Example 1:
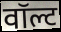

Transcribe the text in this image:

वॉल्ट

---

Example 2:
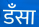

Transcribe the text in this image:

डँसा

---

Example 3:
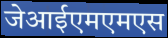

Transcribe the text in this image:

जेआईएमएमएस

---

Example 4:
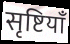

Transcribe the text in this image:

सृष्टियाँ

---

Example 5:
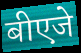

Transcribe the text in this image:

बीएजे